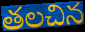
తలచిన